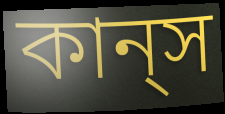
কান্‌স